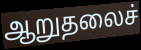
ஆறுதலைச்